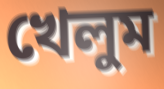
খেলুম